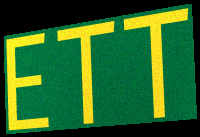
ETT